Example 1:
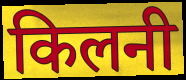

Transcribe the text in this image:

किलनी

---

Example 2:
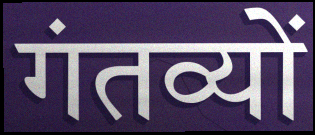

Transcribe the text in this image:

गंतव्यों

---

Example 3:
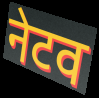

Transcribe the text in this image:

नेटव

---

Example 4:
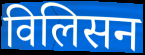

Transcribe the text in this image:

विलिसन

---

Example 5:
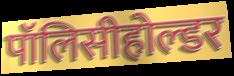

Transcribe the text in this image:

पॉलिसीहोल्डर